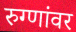
रुग्णांवर